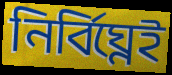
নির্বিঘ্নেই